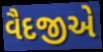
વૈદજીએ